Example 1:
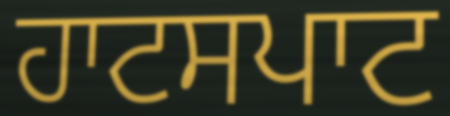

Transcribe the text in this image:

ਹਾਟਸਪਾਟ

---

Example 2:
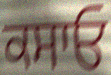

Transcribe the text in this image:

ਕਸਾਓ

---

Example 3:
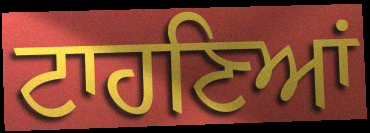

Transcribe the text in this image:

ਟਾਹਣਿਆਂ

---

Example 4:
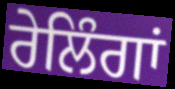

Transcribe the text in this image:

ਰੇਲਿੰਗਾਂ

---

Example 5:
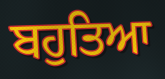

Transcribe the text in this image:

ਬਹੁਤਿਆ